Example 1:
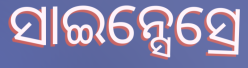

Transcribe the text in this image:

ସାଇନ୍ସେସ୍ରେ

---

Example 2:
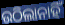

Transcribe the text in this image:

ଉଠିଲାନାହିଁ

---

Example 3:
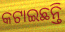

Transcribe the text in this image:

କଟାଇଛନ୍ତି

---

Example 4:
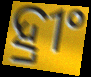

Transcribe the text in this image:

ହ୍ରୀଂ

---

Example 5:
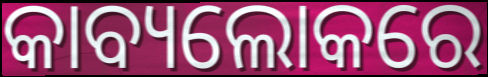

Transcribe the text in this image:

କାବ୍ୟଲୋକରେ